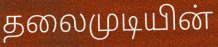
தலைமுடியின்